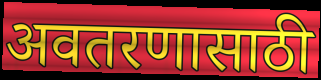
अवतरणासाठी